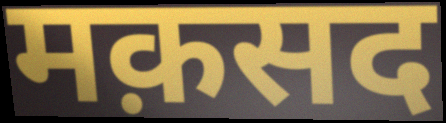
मक़सद